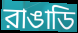
রাঙাডি